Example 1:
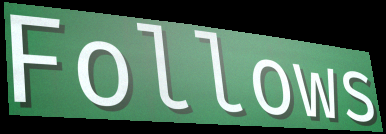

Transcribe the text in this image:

Follows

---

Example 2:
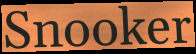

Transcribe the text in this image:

Snooker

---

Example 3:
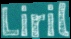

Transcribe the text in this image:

Liril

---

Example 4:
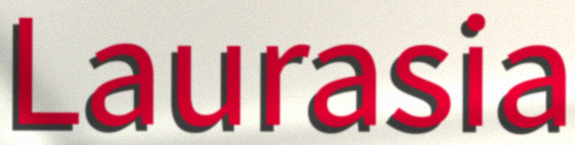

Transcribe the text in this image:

Laurasia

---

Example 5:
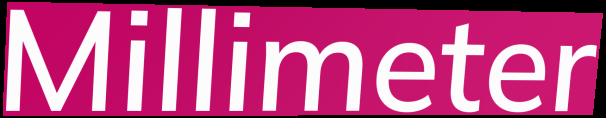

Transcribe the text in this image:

Millimeter